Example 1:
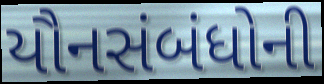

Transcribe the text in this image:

યૌનસંબંધોની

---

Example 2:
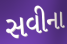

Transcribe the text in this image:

સવીના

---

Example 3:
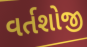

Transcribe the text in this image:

વર્તશોજી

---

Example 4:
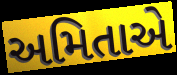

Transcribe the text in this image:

અમિતાએ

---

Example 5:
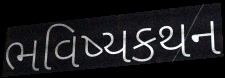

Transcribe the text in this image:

ભવિષ્યકથન